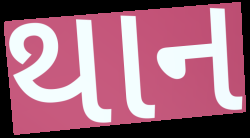
થાન